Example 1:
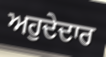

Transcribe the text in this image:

ਅਹੁਦੇਦਾਰ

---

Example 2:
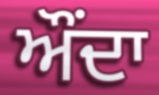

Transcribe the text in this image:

ਔਂਦਾ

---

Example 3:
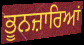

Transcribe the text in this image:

ਭੂਨਜ਼ਾਰਿਆਂ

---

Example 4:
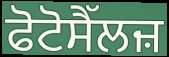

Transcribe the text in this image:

ਫੋਟੋਸੈੱਲਜ਼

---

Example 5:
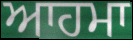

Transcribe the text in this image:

ਆਹਮਾ